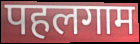
पहलगाम